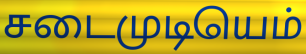
சடைமுடியெம்